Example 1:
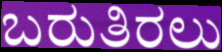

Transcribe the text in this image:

ಬರುತಿರಲು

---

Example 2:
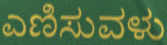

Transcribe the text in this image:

ಎಣಿಸುವಳು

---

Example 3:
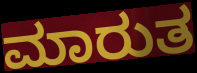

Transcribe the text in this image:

ಮಾರುತ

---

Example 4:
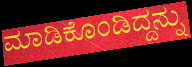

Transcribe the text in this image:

ಮಾಡಿಕೊಂಡಿದ್ದನ್ನು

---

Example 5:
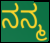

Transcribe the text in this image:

ನನ್ಮ